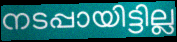
നടപ്പായിട്ടില്ല